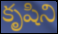
కృషిని